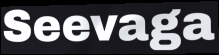
Seevaga